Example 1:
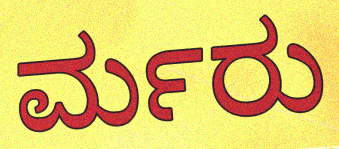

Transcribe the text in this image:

ರ್ಮರು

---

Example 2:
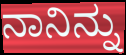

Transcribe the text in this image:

ನಾನಿನ್ನು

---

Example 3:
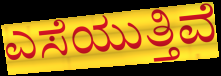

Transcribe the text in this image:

ಎಸೆಯುತ್ತಿವೆ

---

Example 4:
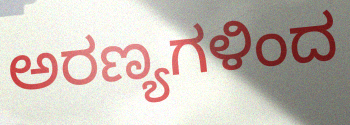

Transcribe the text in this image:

ಅರಣ್ಯಗಳಿಂದ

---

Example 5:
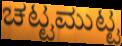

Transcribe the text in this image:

ಚಟ್ಟಮುಟ್ಟ